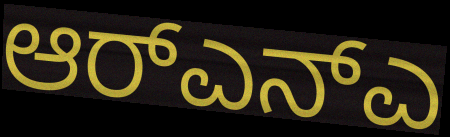
ಆರ್‌ಎನ್ಎ